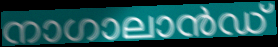
നാഗാലാൻഡ്